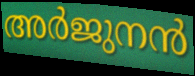
അർജുനൻ